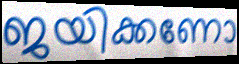
ജയിക്കണോ